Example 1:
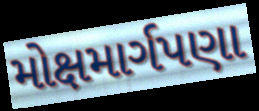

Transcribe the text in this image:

મોક્ષમાર્ગપણા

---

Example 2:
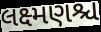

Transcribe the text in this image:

લક્ષ્મણશ્ચ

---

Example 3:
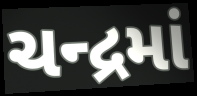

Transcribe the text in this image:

ચન્દ્રમાં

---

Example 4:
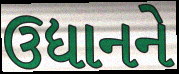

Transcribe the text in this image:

ઉદ્યાનને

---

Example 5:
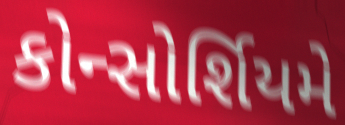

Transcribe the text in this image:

કોન્સોર્શિયમે